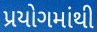
પ્રયોગમાંથી